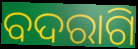
ବଦରାଗି